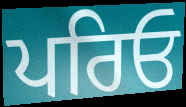
ਪਰਿਓ